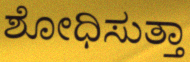
ಶೋಧಿಸುತ್ತಾ